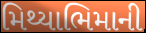
મિથ્યાભિમાની